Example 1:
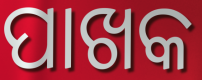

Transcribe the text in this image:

ପାଖକ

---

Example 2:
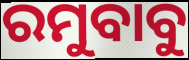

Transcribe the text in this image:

ରମୁବାବୁ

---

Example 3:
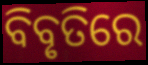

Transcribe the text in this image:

ବିବୃତିରେ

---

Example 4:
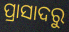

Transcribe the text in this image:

ପ୍ରାସାଦରୁ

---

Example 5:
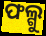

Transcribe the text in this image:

ଫଲ୍ଗୁ